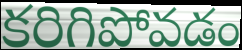
కరిగిపోవడం